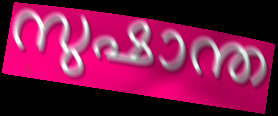
സുഷാന്ത